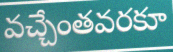
వచ్చేంతవరకూ